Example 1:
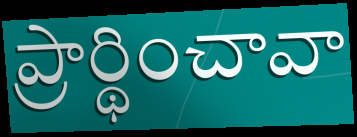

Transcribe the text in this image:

ప్రార్థించావా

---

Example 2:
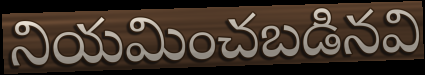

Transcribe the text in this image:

నియమించబడినవి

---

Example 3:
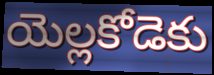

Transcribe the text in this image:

యెల్లకోడెకు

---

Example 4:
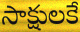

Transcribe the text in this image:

సాక్షులకే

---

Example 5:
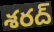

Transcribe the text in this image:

శరద్